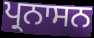
ਪ੍ਰਨਾਸਨ